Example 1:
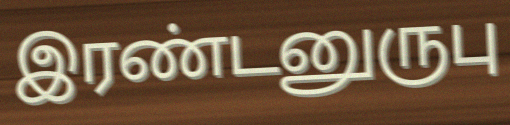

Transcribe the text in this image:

இரண்டனுருபு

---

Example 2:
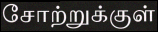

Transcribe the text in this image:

சோற்றுக்குள்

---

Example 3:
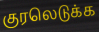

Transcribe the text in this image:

குரலெடுக்க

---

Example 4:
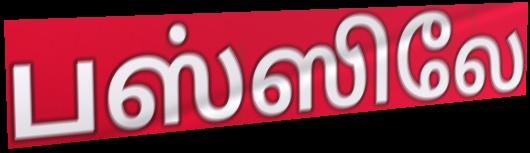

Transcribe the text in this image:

பஸ்ஸிலே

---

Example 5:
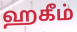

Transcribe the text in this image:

ஹகீம்